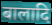
बालादि